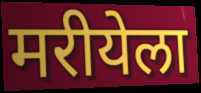
मरीयेला